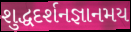
શુદ્ધદર્શનજ્ઞાનમય